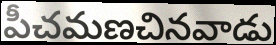
పీచమణచినవాడు